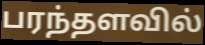
பரந்தளவில்